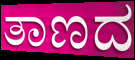
ತಾಣದ